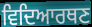
ਵਿਦਿਆਰਥਣ